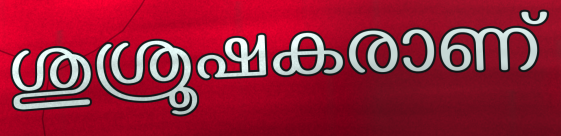
ശുശ്രൂഷകരാണ്